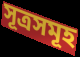
সূত্ৰসমূহ